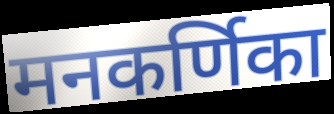
मनकर्णिका